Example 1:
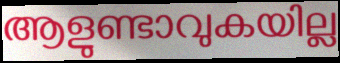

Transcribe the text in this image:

ആളുണ്ടാവുകയില്ല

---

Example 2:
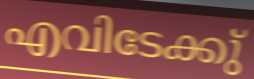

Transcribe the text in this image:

എവിടേക്കു്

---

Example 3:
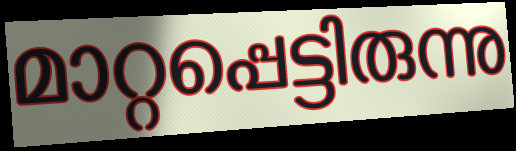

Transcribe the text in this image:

മാറ്റപ്പെട്ടിരുന്നു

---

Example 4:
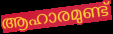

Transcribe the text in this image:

ആഹാരമുണ്ട്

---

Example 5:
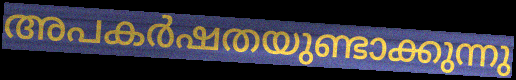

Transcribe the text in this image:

അപകർഷതയുണ്ടാക്കുന്നു